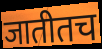
जातीतच